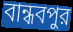
বান্ধবপুর